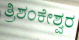
ತ್ರಿಶಂಕೇಶ್ವರ